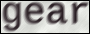
gear